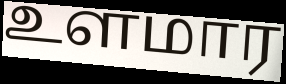
உளமார